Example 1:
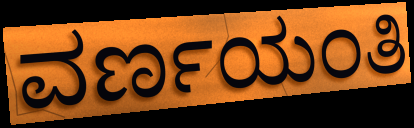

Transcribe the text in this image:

ವರ್ಣಯಂತಿ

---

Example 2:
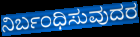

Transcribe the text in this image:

ನಿರ್ಬಂಧಿಸುವುದರ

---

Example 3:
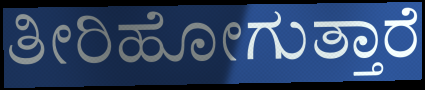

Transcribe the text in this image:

ತೀರಿಹೋಗುತ್ತಾರೆ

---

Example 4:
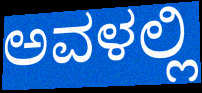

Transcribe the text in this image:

ಅವಳಲ್ಲಿ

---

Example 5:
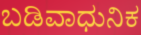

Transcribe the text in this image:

ಬಡಿವಾಧುನಿಕ